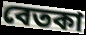
বেতকা